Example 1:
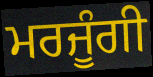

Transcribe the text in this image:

ਮਰਜੂੰਗੀ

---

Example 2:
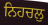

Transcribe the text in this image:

ਨਿਹਚਲੁ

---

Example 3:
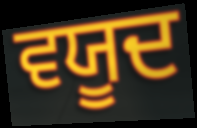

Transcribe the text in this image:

ਵਯੂਦ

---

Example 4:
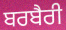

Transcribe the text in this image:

ਬਰਬੈਰੀ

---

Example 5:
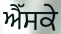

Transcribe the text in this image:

ਐੱਸਕੇ